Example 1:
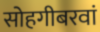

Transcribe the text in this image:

सोहगीबरवां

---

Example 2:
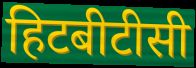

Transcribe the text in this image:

हिटबीटीसी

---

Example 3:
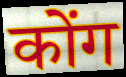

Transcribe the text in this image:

कोंग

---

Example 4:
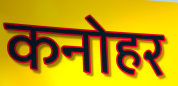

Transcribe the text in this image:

कनोहर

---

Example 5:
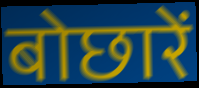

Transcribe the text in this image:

बोछारें